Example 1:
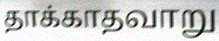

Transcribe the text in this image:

தாக்காதவாறு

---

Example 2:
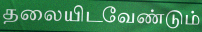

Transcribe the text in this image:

தலையிடவேண்டும்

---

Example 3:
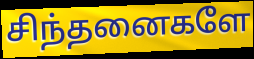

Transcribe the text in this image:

சிந்தனைகளே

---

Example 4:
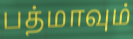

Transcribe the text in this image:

பத்மாவும்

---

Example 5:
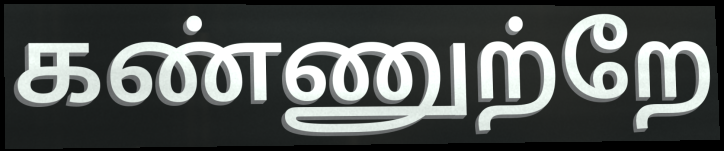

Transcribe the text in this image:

கண்ணுற்றே